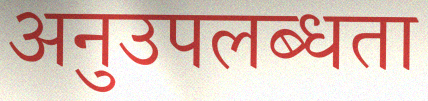
अनुउपलब्धता